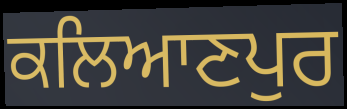
ਕਲਿਆਣਪੁਰ